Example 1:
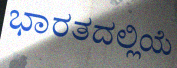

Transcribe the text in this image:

ಭಾರತದಲ್ಲಿಯೆ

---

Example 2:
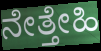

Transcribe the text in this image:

ನೇತ್ತೇಹಿ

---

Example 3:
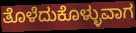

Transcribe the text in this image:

ತೊಳೆದುಕೊಳ್ಳುವಾಗ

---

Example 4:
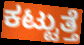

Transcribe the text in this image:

ಕಟ್ಟುತ್ತೆ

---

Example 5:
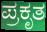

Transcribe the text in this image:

ಪ್ರಕೃತ